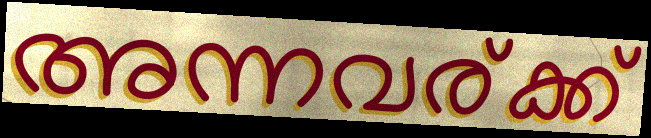
അന്നവര്ക്ക്